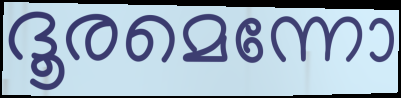
ദൂരമെന്നോ